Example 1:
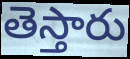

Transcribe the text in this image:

తెస్తారు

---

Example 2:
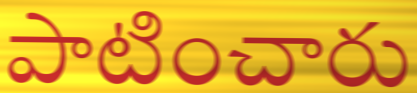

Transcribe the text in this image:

పాటించారు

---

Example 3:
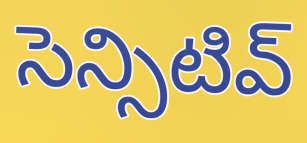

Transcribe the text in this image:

సెన్సిటివ్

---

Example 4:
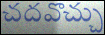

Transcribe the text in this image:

చదవొచ్చు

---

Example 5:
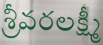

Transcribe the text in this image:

శ్రీవరలక్ష్మీ